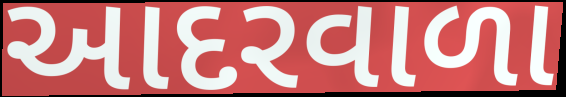
આદરવાળા